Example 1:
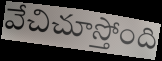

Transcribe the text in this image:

వేచిచూస్తోంది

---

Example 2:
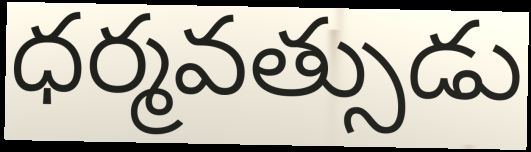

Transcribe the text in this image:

ధర్మవత్సుడు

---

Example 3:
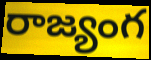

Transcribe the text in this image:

రాజ్యంగ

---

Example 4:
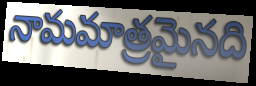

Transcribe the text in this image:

నామమాత్రమైనది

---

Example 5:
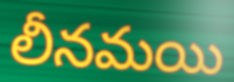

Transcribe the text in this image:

లీనమయి